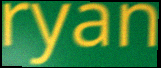
ryan